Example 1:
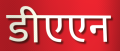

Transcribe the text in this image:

डीएएन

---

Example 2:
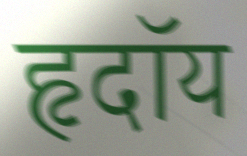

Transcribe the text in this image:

हृदॉय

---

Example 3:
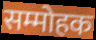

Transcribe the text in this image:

सम्मोहक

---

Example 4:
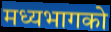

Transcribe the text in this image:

मध्यभागको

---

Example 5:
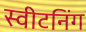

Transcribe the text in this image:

स्वीटनिंग